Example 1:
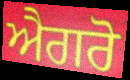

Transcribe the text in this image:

ਐਗਰੋ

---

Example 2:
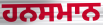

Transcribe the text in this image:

ਹਨਸਮਾਨ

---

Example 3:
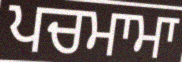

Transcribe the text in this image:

ਪਚਮਾਮਾ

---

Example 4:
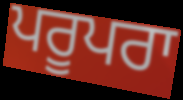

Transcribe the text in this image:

ਪਰੂਪਰਾ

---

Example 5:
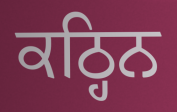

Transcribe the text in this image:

ਕਠ੍ਹਿਨ